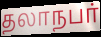
தலாநபர்